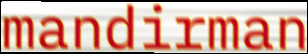
mandirman